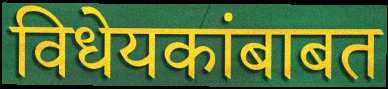
विधेयकांबाबत